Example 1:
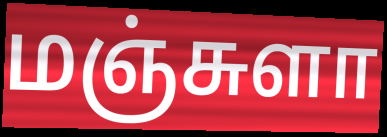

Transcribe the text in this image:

மஞ்சுளா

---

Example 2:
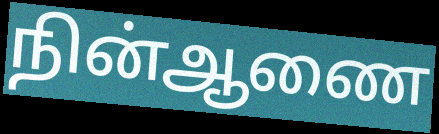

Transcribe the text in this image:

நின்ஆணை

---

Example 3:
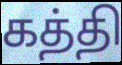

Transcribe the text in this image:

கத்தி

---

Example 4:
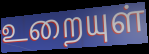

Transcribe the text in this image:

உறையுள்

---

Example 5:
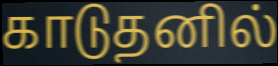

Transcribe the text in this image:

காடுதனில்